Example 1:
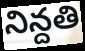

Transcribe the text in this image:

నిన్దతి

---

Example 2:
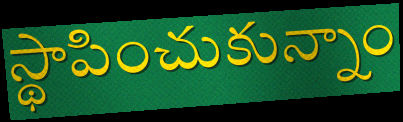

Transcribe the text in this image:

స్థాపించుకున్నాం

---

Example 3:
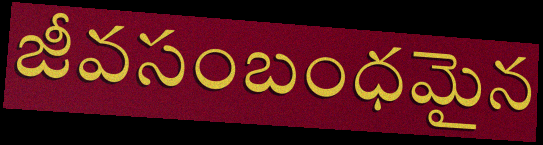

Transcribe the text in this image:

జీవసంబంధమైన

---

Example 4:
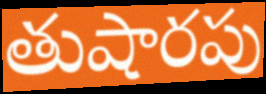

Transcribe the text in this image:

తుషారపు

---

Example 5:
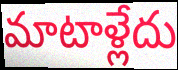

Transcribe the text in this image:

మాటాళ్లేదు